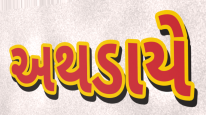
અથડાયે